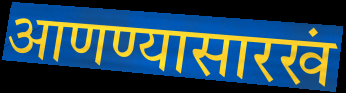
आणण्यासारखं